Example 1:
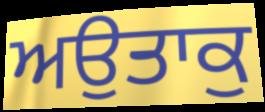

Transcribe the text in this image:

ਅਉਤਾਕੁ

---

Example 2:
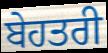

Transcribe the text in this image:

ਬੇਹਤਰੀ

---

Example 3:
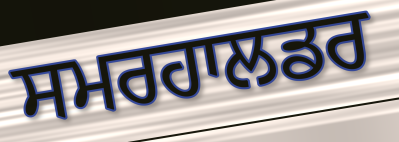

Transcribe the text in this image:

ਸਮਰਹਾਲਡਰ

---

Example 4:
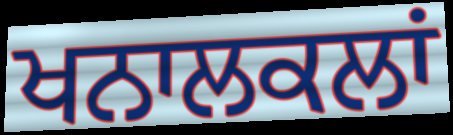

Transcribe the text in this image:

ਖਨਾਲਕਲਾਂ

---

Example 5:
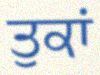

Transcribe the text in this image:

ਤੁਕਾਂ